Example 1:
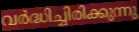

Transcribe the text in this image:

വർദ്ധിച്ചിരിക്കുന്നു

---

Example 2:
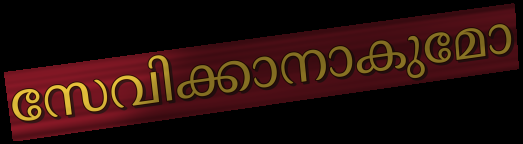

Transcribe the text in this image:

സേവിക്കാനാകുമോ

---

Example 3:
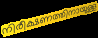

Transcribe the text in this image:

നിരീക്ഷണത്തിനായുള്ള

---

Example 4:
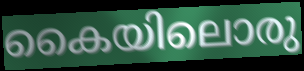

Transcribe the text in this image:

കൈയിലൊരു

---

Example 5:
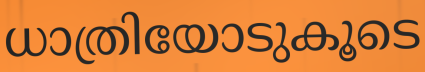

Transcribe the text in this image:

ധാത്രിയോടുകൂടെ